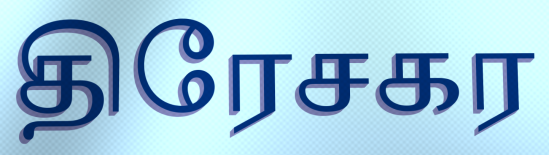
திரேசகர